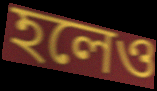
হলেও